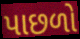
પાછળો